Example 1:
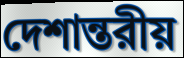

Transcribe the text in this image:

দেশান্তরীয়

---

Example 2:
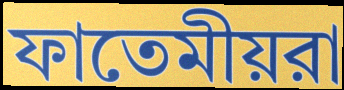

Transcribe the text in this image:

ফাতেমীয়রা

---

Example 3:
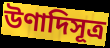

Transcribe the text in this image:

উণাদিসূত্র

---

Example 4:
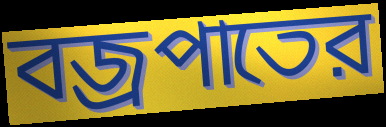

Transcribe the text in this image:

বজ্রপাতের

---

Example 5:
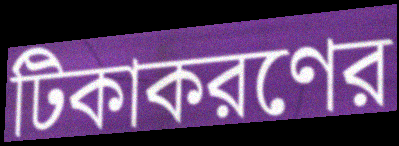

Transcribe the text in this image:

টিকাকরণের